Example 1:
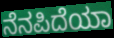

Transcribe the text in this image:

ನೆನಪಿದೆಯಾ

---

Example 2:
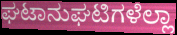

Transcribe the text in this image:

ಘಟಾನುಘಟಿಗಳೆಲ್ಲಾ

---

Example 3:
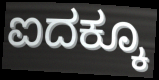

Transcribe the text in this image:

ಐದಕ್ಕೂ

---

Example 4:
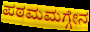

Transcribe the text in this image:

ಪಠಮಮಗ್ಗೇನ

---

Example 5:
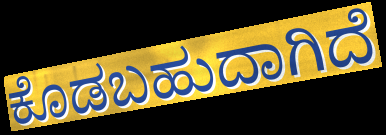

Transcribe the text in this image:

ಕೊಡಬಹುದಾಗಿದೆ